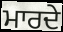
ਮਾਰਦੇ